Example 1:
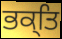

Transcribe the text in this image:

ਭਕ੍ਤਿ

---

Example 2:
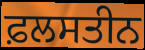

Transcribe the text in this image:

ਫ਼ਲਸਤੀਨ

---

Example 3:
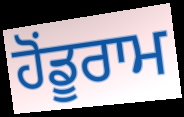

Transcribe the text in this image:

ਹੋਂਡੂਰਾਮ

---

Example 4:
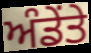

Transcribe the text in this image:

ਅੰਡੇਂਤੇ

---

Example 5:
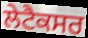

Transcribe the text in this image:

ਲੇਟੈਕਸਰ